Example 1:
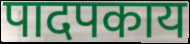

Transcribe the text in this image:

पादपकाय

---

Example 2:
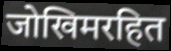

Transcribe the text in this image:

जोखिमरहित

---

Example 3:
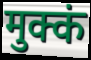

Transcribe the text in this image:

मुक्कं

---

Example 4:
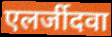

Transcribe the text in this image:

एलर्जीदवा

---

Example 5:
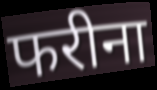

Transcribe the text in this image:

फरीना